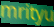
mrityu